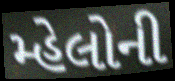
મ્હેલોની